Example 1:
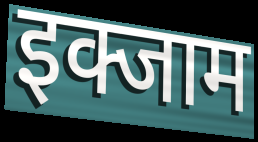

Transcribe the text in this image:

इक्जाम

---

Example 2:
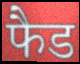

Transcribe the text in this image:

फैड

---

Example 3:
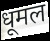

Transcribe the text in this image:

धूमल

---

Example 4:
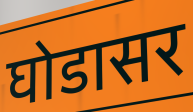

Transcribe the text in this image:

घोडासर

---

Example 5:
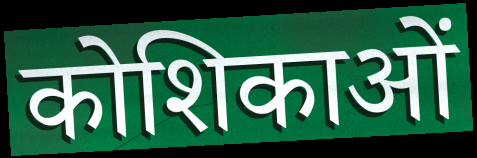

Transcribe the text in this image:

कोशिकाओं